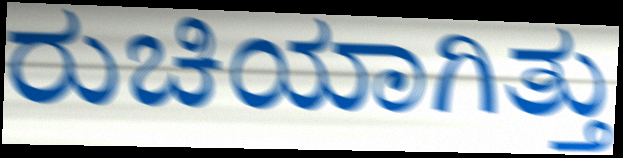
ರುಚಿಯಾಗಿತ್ತು